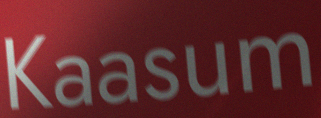
Kaasum